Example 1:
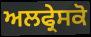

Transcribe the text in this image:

ਅਲਫ੍ਰੇਸਕੋ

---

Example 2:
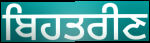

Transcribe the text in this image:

ਬਿਹਤਰੀਣ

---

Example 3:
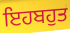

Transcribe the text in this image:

ਇਹਬਹੁਤ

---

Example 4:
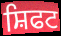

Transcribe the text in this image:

ਸ਼ਿਫਟ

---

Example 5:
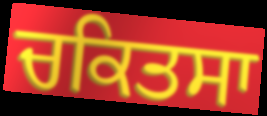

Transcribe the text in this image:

ਚਕਿਤਸਾ